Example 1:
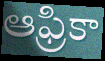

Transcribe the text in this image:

ఆఫ్రికా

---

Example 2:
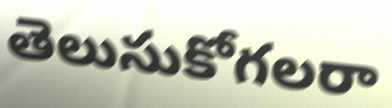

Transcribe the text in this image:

తెలుసుకోగలరా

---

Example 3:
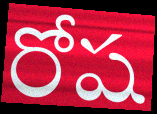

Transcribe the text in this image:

రోష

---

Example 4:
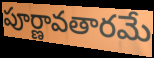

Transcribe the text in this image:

పూర్ణావతారమే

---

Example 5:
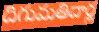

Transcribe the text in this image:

దిగుమతిదార్ల